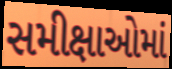
સમીક્ષાઓમાં